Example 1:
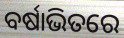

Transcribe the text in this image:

ବର୍ଷାଭିତରେ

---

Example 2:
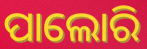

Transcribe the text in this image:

ପାଲୋରି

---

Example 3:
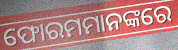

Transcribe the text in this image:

ଫୋରମମାନଙ୍କରେ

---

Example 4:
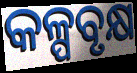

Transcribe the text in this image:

କଳ୍ପବୃକ୍ଷ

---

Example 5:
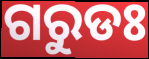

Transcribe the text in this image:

ଗରୁଡଃ